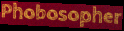
Phobosopher